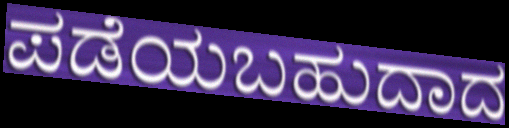
ಪಡೆಯಬಹುದಾದ